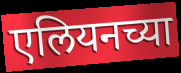
एलियनच्या